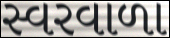
સ્વરવાળા